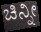
ಚಿನ್ನೀ